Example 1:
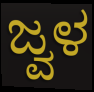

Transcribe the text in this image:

ಜ್ವಳ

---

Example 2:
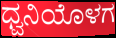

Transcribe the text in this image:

ಧ್ವನಿಯೊಳಗ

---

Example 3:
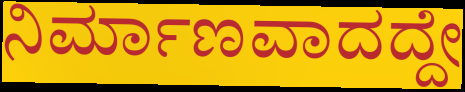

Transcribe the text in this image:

ನಿರ್ಮಾಣವಾದದ್ದೇ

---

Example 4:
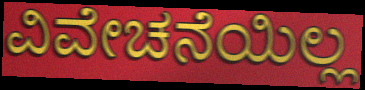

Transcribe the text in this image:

ವಿವೇಚನೆಯಿಲ್ಲ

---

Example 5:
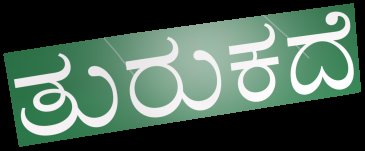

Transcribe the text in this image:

ತುರುಕದೆ